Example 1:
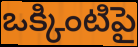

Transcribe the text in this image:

ఒక్కింటిపై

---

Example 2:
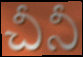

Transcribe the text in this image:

చీనీ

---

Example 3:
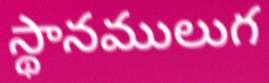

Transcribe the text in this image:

స్థానములుగ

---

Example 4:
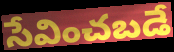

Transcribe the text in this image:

సేవించబడే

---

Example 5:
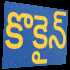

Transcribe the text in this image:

కొకైన్